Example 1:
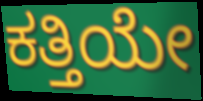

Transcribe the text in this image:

ಕತ್ತಿಯೇ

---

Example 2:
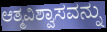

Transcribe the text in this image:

ಆತ್ಮವಿಶ್ವಾಸವನ್ನು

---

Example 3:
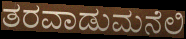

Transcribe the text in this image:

ತರವಾಡುಮನೆಲಿ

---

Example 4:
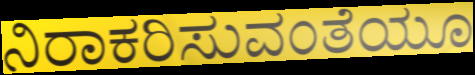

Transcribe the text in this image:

ನಿರಾಕರಿಸುವಂತೆಯೂ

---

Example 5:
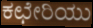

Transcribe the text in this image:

ಕಛೇರಿಯು